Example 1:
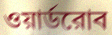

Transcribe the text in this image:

ওয়ার্ডরোব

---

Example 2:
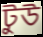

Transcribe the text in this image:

টুউ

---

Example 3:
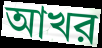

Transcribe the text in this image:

আখর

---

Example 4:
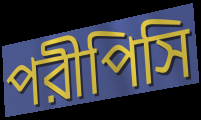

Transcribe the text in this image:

পরীপিসি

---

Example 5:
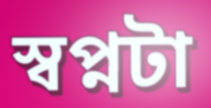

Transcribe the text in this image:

স্বপ্নটা